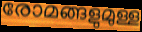
രോമങ്ങളുമുള്ള